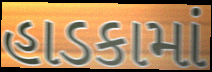
હાડકામાં